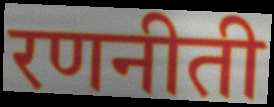
रणनीती